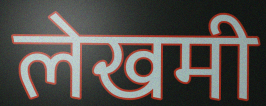
लेखमी